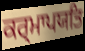
ਕਰ੍ਮਾਪਯਤਿ